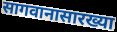
सागवानासारख्या